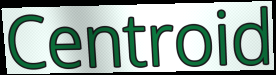
Centroid